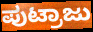
ಪುಟ್ರಾಜು